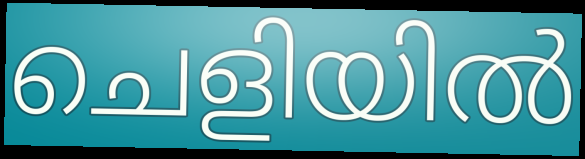
ചെളിയിൽ